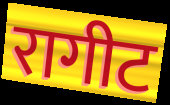
रागीट